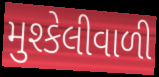
મુશ્કેલીવાળી